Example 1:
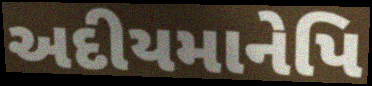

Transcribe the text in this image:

અદીયમાનેપિ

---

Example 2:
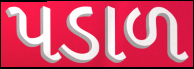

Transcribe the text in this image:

પડાળ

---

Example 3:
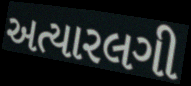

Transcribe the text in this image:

અત્યારલગી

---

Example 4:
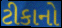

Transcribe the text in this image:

ટીકાનો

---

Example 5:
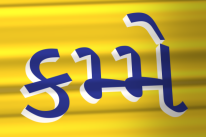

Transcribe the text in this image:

કમ્મે